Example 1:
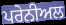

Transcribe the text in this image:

ਪਰੇਨੀਅਲ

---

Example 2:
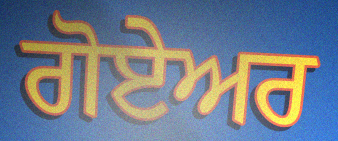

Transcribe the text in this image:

ਗੋਏਅਰ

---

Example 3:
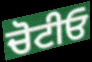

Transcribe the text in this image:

ਚੋਟੀਓ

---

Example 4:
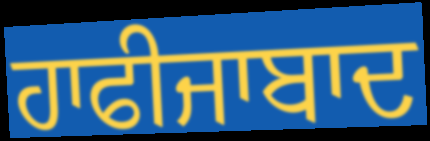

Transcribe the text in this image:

ਹਾਫੀਜਾਬਾਦ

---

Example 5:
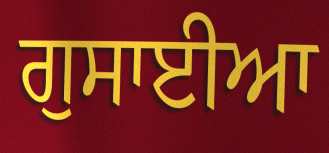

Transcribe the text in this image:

ਗੁਸਾਈਆ